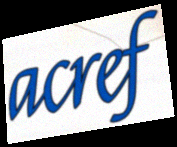
acref